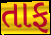
તાફ